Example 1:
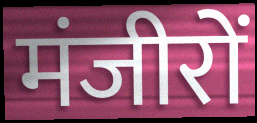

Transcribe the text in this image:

मंजीरों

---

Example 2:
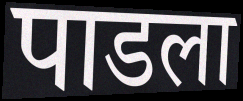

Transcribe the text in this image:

पाडला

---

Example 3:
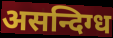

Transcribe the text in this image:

असन्दिग्ध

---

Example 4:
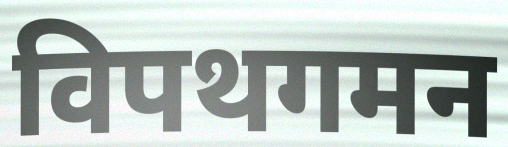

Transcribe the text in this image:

विपथगमन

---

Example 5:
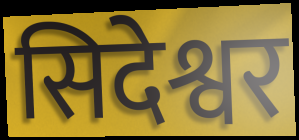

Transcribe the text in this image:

सिदेश्वर